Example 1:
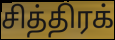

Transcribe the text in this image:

சித்திரக்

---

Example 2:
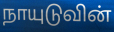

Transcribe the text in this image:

நாயுடுவின்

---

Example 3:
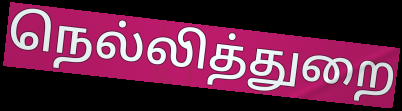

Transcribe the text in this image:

நெல்லித்துறை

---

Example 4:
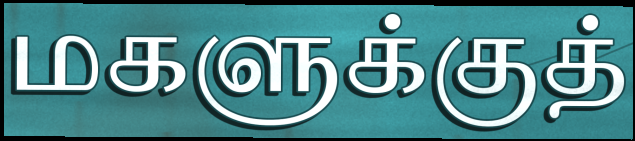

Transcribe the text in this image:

மகளுக்குத்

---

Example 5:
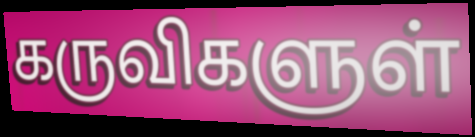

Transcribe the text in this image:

கருவிகளுள்